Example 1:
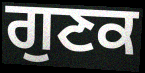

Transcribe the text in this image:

ਗੁਣਕ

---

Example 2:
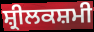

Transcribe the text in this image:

ਸ਼੍ਰੀਲਕਸ਼ਮੀ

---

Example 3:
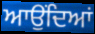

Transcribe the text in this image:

ਆਉਂਦਿਆਂ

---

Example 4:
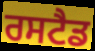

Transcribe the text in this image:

ਰਸਟੈਡ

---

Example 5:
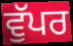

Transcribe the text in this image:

ਵੁੱਪਰ